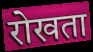
रोखता